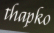
thapko